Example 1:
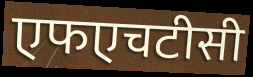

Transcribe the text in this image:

एफएचटीसी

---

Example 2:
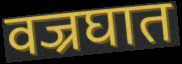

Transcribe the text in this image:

वज्रघात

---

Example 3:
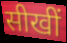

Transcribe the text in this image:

सीखीं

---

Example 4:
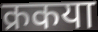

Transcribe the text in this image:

क्रकया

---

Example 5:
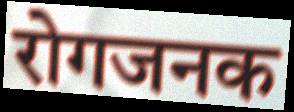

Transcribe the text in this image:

रोगजनक